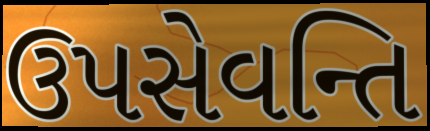
ઉપસેવન્તિ